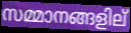
സമ്മാനങ്ങളില്